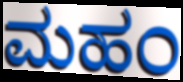
ಮಹಂ